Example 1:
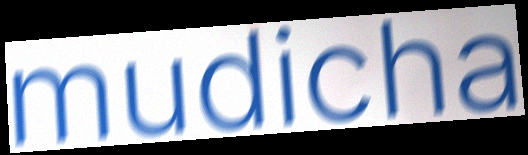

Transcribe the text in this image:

mudicha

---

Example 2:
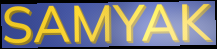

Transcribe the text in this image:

SAMYAK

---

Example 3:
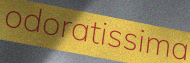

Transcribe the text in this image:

odoratissima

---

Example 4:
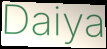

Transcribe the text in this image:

Daiya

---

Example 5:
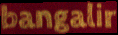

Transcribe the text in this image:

bangalir